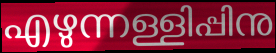
എഴുന്നള്ളിപ്പിനു